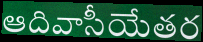
ఆదివాసీయేతర